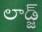
లాడ్జ్